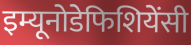
इम्यूनोडेफिशियेंसी